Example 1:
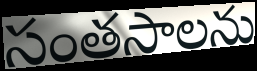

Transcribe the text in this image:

సంతసాలను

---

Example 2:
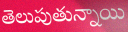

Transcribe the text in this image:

తెలుపుతున్నాయి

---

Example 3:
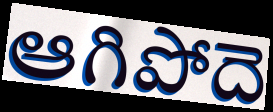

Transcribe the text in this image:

ఆగిపోదె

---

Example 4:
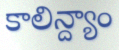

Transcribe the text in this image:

కాలిన్ద్యాం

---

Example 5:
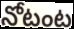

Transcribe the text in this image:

నోటంట